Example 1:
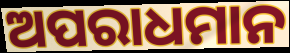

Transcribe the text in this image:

ଅପରାଧମାନ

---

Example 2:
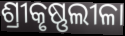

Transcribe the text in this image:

ଶ୍ରୀକୃଷ୍ଣଲୀଳା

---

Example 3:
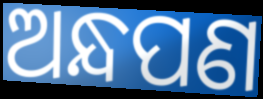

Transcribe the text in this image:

ଅନ୍ଧପଣ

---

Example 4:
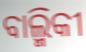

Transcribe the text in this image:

ବାଲ୍ମିକୀ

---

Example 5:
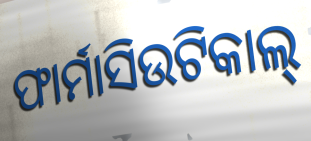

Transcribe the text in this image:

ଫାର୍ମାସିଉଟିକାଲ୍